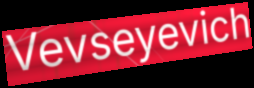
Vevseyevich